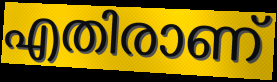
എതിരാണ്